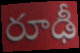
రూఢీ